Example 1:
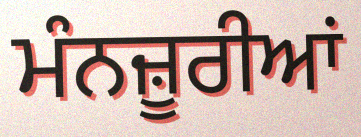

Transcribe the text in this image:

ਮੰਨਜ਼ੂਰੀਆਂ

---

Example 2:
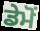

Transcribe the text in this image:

ਡੇਮੋਂ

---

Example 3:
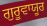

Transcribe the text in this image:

ਗੁਰੂਵਾਯੂਰ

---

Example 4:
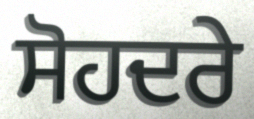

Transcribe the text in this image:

ਸੋਹਦਰੇ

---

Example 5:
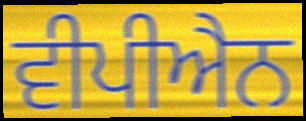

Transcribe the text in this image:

ਵੀਪੀਐਨ